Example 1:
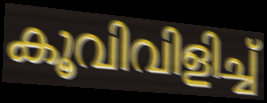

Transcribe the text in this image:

കൂവിവിളിച്ച്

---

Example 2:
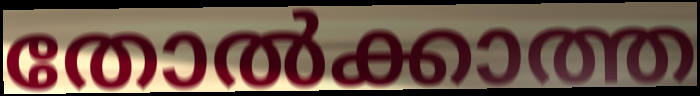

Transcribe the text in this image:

തോൽക്കാത്ത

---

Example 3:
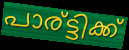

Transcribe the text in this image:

പാര്ട്ടിക്ക്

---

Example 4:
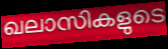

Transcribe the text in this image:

ഖലാസികളുടെ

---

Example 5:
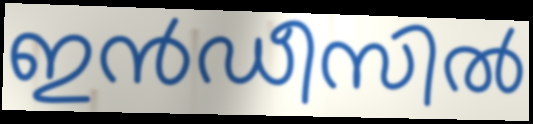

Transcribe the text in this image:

ഇൻഡീസിൽ